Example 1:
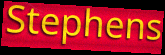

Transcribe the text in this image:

Stephens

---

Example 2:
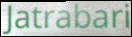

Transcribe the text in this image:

Jatrabari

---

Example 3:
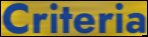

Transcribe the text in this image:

Criteria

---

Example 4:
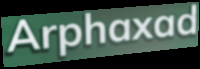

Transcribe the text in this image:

Arphaxad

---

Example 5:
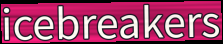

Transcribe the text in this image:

icebreakers